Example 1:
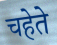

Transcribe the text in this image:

चहेते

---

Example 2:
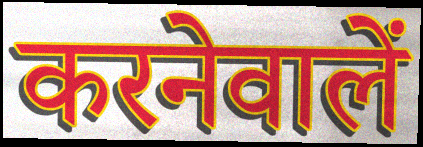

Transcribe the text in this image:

करनेवालें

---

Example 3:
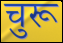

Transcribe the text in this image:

चुरू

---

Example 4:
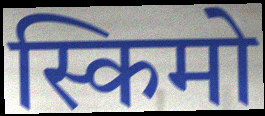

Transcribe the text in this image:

स्किमो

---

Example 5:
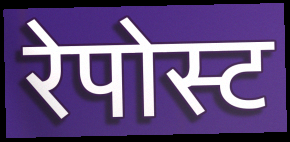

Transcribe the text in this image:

रेपोस्ट